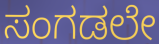
ಸಂಗಡಲೇ